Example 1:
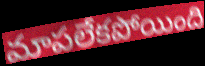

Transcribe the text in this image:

మాపలేకపోయింది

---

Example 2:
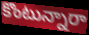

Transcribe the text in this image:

కొంటున్నారా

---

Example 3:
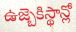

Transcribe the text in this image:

ఉజ్బెకిస్థాన్లో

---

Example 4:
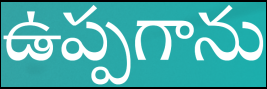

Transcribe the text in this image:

ఉప్పగాను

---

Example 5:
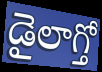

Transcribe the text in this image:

డైలాగ్తో